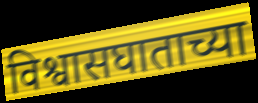
विश्वासघाताच्या